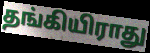
தங்கியிராது